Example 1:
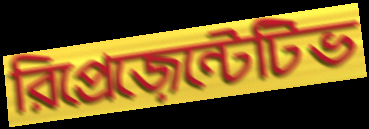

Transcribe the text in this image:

রিপ্রেজ়েন্টেটিভ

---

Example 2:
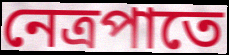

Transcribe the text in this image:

নেত্রপাতে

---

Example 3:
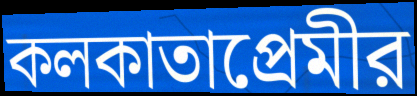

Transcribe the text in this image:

কলকাতাপ্রেমীর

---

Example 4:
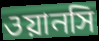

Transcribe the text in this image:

ওয়ানসি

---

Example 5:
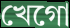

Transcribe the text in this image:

খেগো